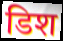
डिश